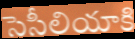
సెసీలియాకి